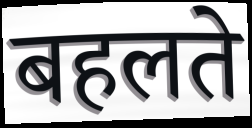
बहलते